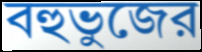
বহুভুজের